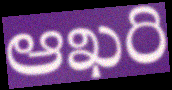
ఆఖరి